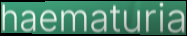
haematuria